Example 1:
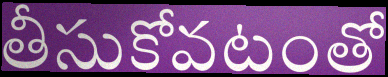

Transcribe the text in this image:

తీసుకోవటంతో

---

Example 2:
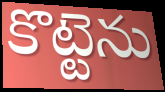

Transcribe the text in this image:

కొట్టెను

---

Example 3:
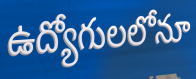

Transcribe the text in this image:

ఉద్యోగులలోనూ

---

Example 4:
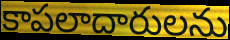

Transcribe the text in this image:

కాపలాదారులను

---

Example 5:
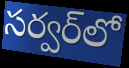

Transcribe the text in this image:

సర్వర్‌లో